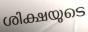
ശിക്ഷയുടെ